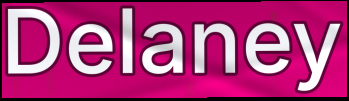
Delaney